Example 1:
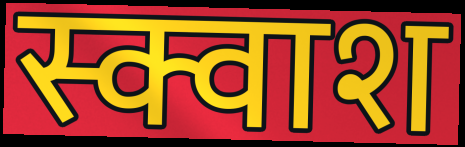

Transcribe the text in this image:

स्क्वाश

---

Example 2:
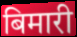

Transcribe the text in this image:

बिमारी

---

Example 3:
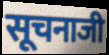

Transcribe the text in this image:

सूचनाजी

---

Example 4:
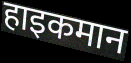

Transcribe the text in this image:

हाइकमान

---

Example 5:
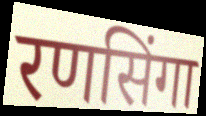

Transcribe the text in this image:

रणसिंगा